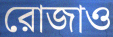
রোজাও